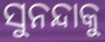
ସୁନନ୍ଦାକୁ